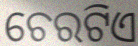
ଚେରଟିଏ